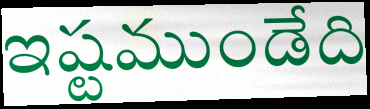
ఇష్టముండేది